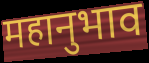
महानुभाव